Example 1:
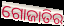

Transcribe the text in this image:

ଗୋଜାତିର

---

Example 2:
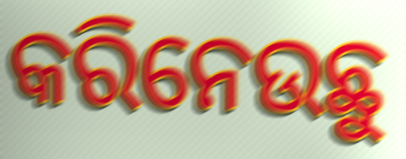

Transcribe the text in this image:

କରିନେଉଛୁ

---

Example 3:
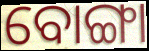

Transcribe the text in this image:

ବୋଙ୍ଗା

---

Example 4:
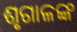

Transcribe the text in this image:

ଶୃଗାଳଙ୍କ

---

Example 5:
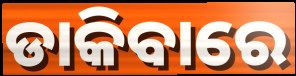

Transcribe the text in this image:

ଡାକିବାରେ